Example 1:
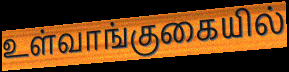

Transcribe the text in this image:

உள்வாங்குகையில்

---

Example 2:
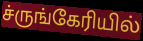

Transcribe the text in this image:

ச்ருங்கேரியில்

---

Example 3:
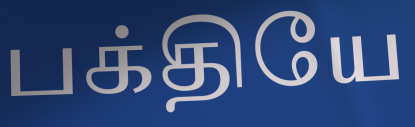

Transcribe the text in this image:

பக்தியே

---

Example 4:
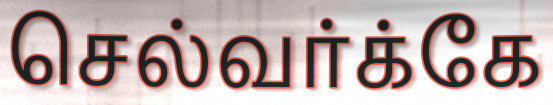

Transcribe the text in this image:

செல்வர்க்கே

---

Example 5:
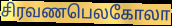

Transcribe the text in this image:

சிரவணபெலகோலா